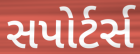
સપોર્ટર્સ